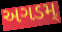
અગડમ્